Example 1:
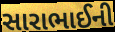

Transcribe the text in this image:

સારાભાઈની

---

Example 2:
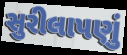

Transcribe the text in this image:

સુરીલાપણું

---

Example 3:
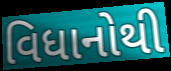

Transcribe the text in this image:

વિધાનોથી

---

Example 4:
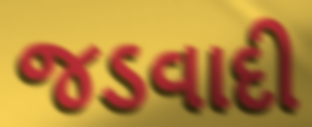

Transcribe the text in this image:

જડવાદી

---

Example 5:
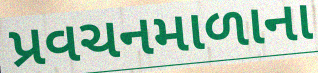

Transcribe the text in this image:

પ્રવચનમાળાના